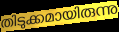
തിടുക്കമായിരുന്നു